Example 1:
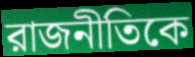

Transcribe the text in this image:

রাজনীতিকে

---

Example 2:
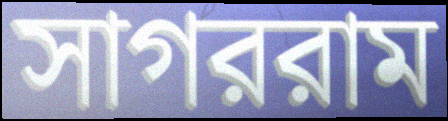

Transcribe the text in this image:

সাগররাম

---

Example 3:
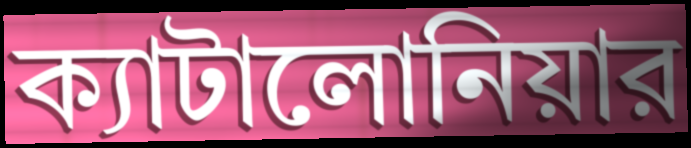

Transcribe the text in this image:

ক্যাটালোনিয়ার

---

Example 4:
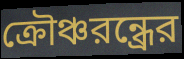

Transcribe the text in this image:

ক্রৌঞ্চরন্ধ্রের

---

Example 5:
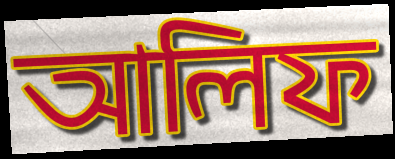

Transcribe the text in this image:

আলিফ